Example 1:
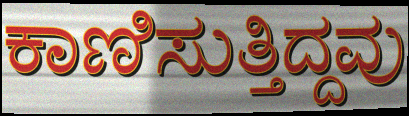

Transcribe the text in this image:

ಕಾಣಿಸುತ್ತಿದ್ದವು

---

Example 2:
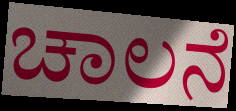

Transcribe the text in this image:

ಚಾಲನೆ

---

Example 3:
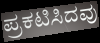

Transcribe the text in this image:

ಪ್ರಕಟಿಸಿದವು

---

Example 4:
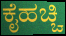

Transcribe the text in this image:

ಕೈಹಚ್ಚಿ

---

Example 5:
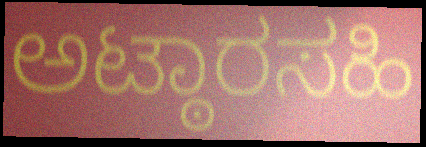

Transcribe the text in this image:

ಅಟ್ಠಾರಸಹಿ